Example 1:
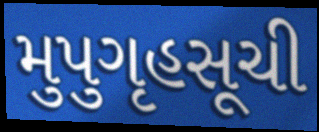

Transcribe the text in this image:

મુપુગૃહસૂચી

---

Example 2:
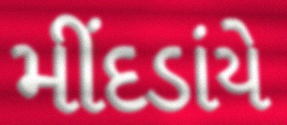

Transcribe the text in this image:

મીંદડાંયે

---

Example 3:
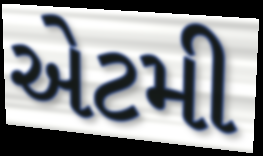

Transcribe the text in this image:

એટમી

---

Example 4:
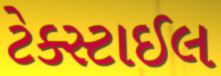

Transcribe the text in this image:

ટેક્સ્ટાઈલ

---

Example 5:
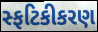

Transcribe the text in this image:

સ્ફટિકીકરણ